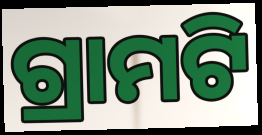
ଗ୍ରାମଟି